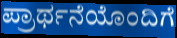
ಪ್ರಾರ್ಥನೆಯೊಂದಿಗೆ